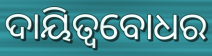
ଦାୟିତ୍ବବୋଧର